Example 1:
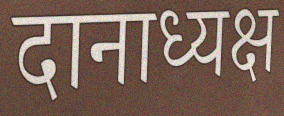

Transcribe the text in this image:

दानाध्यक्ष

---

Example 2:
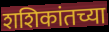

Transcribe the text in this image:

शशिकांतच्या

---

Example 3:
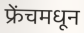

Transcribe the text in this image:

फ्रेंचमधून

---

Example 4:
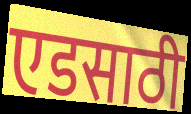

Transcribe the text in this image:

एडसाठी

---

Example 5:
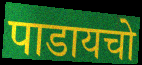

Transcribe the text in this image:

पाडायचो